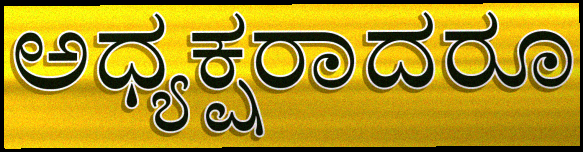
ಅಧ್ಯಕ್ಷರಾದರೂ